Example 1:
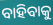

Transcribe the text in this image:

ବାହିବାକୁ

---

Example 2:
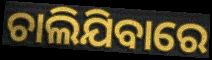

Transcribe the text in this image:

ଚାଲିଯିବାରେ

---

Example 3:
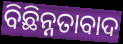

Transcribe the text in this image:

ବିଛିନ୍ନତାବାଦ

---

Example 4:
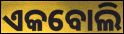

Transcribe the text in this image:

ଏକବୋଲି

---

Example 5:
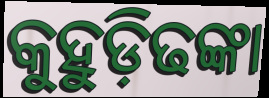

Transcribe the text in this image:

କୁହୁଡ଼ିଢଙ୍କା